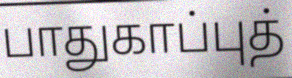
பாதுகாப்புத்